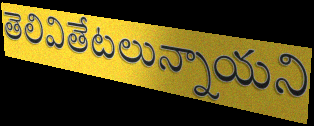
తెలివితేటలున్నాయని